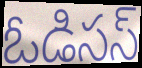
ఓడిసస్